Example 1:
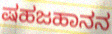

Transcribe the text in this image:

ಷಹಜಹಾನನ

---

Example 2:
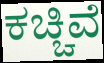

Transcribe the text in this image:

ಕಚ್ಚಿವೆ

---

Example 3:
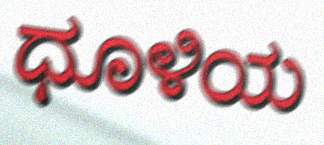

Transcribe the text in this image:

ಧೂಳಿಯ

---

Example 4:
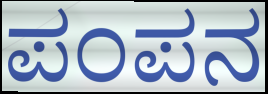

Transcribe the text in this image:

ಪಂಪನ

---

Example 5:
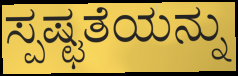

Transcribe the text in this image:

ಸ್ಪಷ್ಟತೆಯನ್ನು